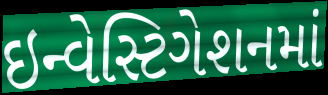
ઇન્વેસ્ટિગેશનમાં